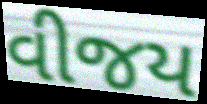
વીજય